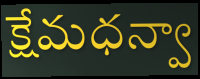
క్షేమధన్వా